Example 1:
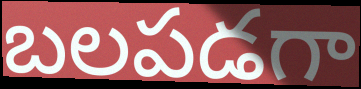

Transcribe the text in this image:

బలపడగా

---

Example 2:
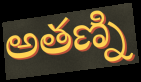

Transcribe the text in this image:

అతణ్ని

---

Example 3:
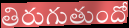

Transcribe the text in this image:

తిరుగుతుందో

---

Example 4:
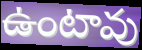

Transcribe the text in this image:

ఉంటావు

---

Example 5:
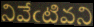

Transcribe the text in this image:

నివేఁటివని